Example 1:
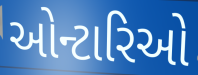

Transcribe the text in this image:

ઓન્ટારિઓ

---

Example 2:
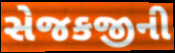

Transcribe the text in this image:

સેજકજીની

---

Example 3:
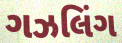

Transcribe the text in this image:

ગઝલિંગ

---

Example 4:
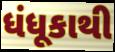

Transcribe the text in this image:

ધંધૂકાથી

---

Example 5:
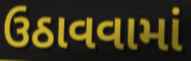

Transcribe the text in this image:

ઉઠાવવામાં